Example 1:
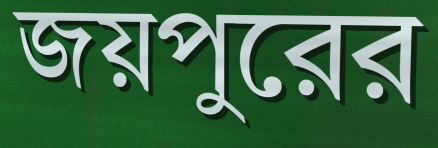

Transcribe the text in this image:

জয়পুরের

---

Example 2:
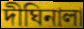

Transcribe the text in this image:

দীঘিনালা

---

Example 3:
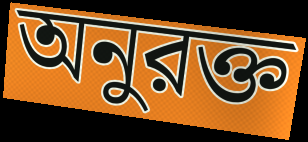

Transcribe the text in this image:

অনুরক্ত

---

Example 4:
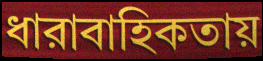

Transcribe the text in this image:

ধারাবাহিকতায়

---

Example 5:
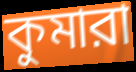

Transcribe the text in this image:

কুমারা